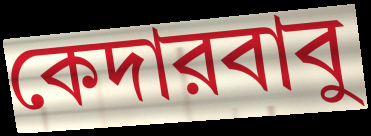
কেদারবাবু